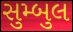
સુમ્બુલ